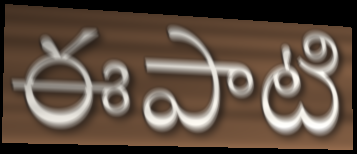
ఈపాటి